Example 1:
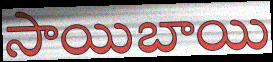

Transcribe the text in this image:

సాయిబాయి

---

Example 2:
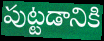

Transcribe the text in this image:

పుట్టడానికి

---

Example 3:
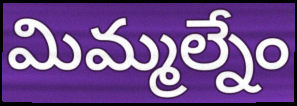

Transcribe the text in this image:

మిమ్మల్నేం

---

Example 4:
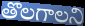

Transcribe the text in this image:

తొలగాలని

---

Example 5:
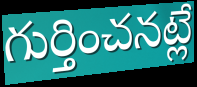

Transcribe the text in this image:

గుర్తించనట్లే